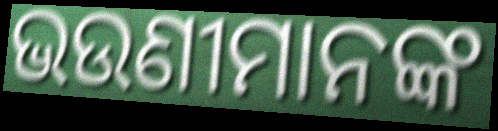
ଭଉଣୀମାନଙ୍କ